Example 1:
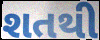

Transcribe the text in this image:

શતથી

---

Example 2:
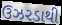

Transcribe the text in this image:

ઉઝરડાથી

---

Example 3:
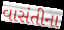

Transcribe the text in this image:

વાસંતીના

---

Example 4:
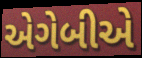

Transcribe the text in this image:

એગેબીએ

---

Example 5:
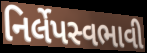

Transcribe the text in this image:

નિર્લેપસ્વભાવી